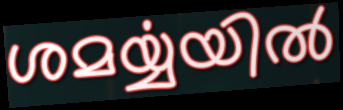
ശമൎയ്യയിൽ